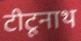
टीटूनाथ